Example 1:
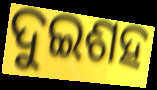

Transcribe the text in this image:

ଦୁଇଶହ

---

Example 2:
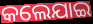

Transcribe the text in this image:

କଲେଯାଇ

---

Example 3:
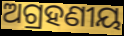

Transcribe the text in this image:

ଅଗ୍ରହଣୀୟ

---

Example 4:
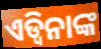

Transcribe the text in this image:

ଏଡ୍ୱିନାଙ୍କ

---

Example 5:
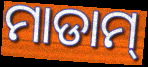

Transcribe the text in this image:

ମାଡାମ୍